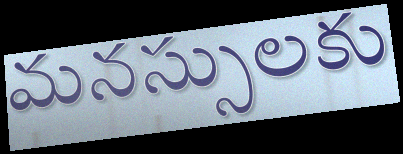
మనస్సులకు